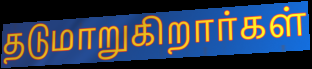
தடுமாறுகிறார்கள்